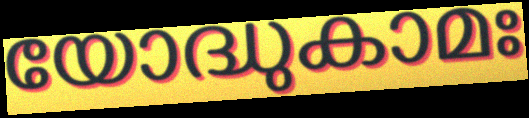
യോദ്ധുകാമഃ